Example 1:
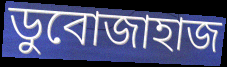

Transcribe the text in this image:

ডুবোজাহাজ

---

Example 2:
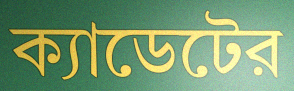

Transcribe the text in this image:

ক্যাডেটের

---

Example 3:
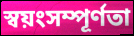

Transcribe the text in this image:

স্বয়ংসম্পূর্ণতা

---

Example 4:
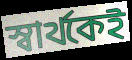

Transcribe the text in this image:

স্বার্থকেই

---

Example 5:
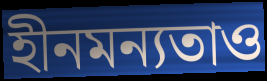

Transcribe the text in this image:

হীনমন্যতাও